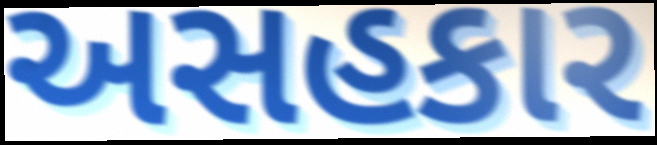
અસહકાર